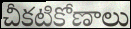
చీకటికోణాలు